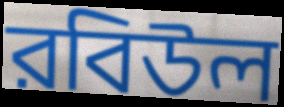
রবিউল